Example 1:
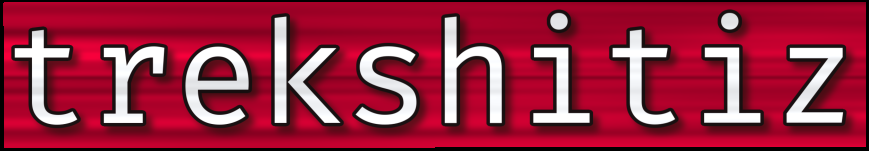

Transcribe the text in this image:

trekshitiz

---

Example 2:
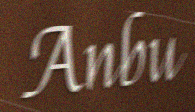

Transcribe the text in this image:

Anbu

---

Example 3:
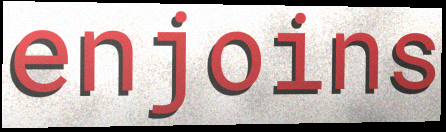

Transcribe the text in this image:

enjoins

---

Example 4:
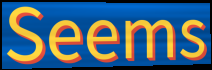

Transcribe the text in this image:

Seems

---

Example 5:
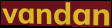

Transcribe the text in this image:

vandan